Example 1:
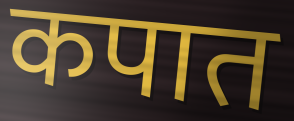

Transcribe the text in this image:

कपात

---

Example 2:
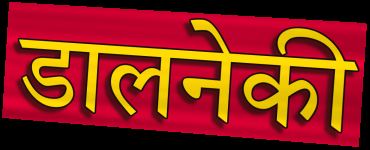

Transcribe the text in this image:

डालनेकी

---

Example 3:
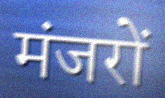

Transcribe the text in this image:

मंजरों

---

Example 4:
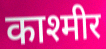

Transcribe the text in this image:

काश्मीर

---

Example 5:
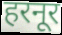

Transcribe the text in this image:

हरनूर